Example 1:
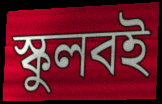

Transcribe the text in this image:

স্কুলবই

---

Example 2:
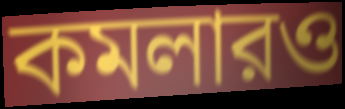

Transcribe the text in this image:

কমলারও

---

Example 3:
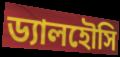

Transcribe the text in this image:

ড্যালহৌসি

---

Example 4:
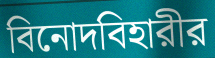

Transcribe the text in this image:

বিনোদবিহারীর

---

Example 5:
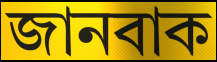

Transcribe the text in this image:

জানবাক